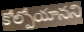
కోల్పోయానని